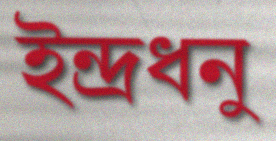
ইন্দ্রধনু